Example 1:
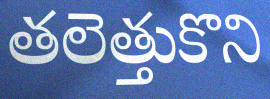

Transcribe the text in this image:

తలెత్తుకొని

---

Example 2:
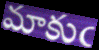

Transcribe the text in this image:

మాకుఁ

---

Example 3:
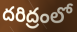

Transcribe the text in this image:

దరిద్రంలో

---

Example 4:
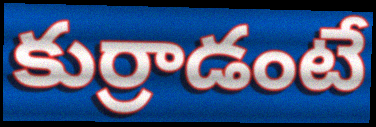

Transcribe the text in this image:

కుర్రాడంటే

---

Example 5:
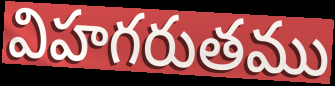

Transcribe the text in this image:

విహగరుతము